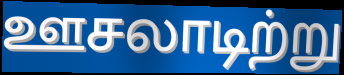
ஊசலாடிற்று